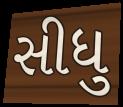
સીધુ